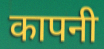
कापनी